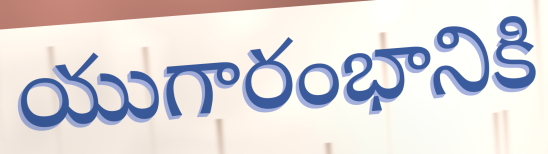
యుగారంభానికి